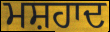
ਮਸ਼ਹਾਦ